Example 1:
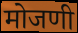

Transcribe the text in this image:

मोजणी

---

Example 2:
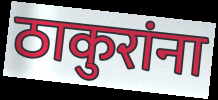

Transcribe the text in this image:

ठाकुरांना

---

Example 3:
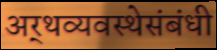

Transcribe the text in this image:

अर्थव्यवस्थेसंबंधी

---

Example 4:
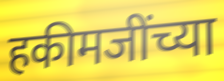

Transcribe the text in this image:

हकीमजींच्या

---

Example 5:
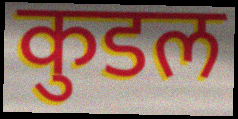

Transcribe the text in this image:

कुडल